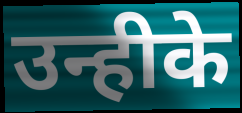
उन्हीके